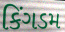
કિંગડમ